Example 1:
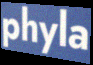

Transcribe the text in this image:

phyla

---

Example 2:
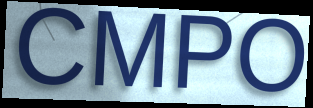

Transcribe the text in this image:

CMPO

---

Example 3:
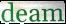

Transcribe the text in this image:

deam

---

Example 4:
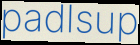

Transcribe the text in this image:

padlsup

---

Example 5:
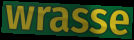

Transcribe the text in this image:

wrasse